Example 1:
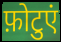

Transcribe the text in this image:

फ़ोटुएं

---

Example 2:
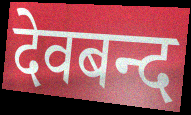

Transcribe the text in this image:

देवबन्द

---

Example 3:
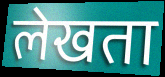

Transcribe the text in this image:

लेखता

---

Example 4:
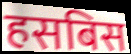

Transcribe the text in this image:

हसबिस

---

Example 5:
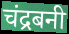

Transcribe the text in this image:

चंद्रबनी